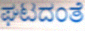
ಘಟದಂತೆ